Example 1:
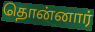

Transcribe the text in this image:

தொன்னார்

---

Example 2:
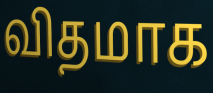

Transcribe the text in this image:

விதமாக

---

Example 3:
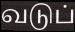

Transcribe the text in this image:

வடுப்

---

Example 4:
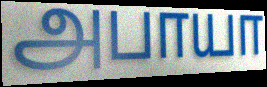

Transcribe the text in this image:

அபாயா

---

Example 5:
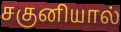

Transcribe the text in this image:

சகுனியால்